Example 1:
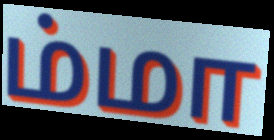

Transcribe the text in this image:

ம்மா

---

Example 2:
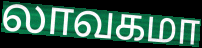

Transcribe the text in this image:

லாவகமா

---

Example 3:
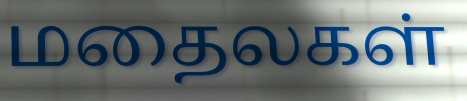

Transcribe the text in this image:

மதைலகள்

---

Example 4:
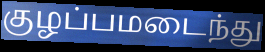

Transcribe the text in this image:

குழப்பமடைந்து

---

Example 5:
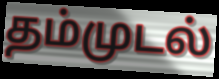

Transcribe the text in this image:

தம்முடல்